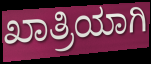
ಖಾತ್ರಿಯಾಗಿ